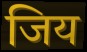
जिय